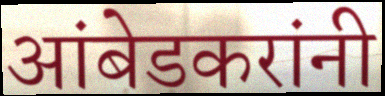
आंबेडकरांनी